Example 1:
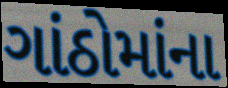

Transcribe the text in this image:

ગાંઠોમાંના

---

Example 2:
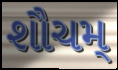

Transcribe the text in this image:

શૌચમ્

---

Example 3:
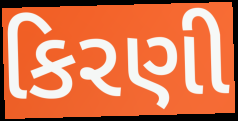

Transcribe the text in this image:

કિરણી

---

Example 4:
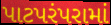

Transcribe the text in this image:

પાટપરંપરામાં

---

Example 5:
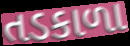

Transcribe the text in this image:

તડકાળા